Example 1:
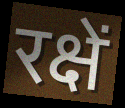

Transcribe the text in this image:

रक्षें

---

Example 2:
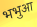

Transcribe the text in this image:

भभुआ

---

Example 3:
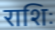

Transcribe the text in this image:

राशिः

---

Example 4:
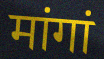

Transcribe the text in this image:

मांगां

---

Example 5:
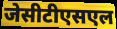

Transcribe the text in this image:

जेसीटीएसएल